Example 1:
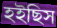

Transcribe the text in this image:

হইছিস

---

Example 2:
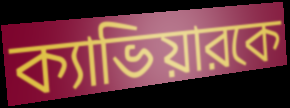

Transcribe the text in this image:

ক্যাভিয়ারকে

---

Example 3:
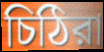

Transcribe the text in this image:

চিঠিরা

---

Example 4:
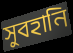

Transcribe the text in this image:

সুবহানি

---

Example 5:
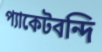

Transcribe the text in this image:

প্যাকেটবন্দি